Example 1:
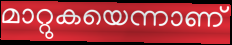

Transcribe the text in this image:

മാറ്റുകയെന്നാണ്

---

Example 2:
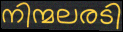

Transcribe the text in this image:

നിന്മലരടി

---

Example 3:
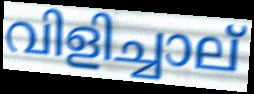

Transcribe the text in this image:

വിളിച്ചാല്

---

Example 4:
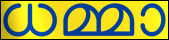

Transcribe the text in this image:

ധമ്മാ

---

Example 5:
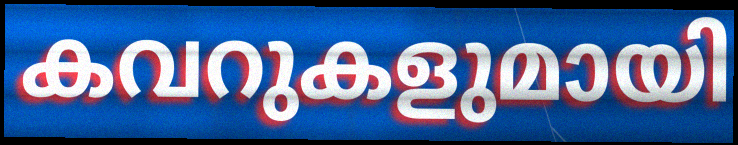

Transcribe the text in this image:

കവറുകളുമായി